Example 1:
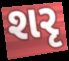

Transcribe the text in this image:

શરૃ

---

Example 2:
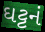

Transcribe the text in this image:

ઘટ્ટનં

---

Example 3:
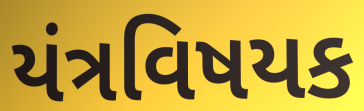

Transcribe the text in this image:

યંત્રવિષયક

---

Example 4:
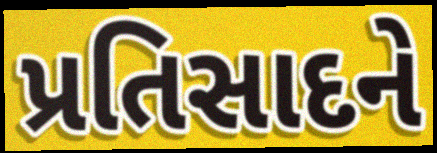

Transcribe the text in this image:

પ્રતિસાદને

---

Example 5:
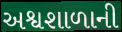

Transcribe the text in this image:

અશ્વશાળાની